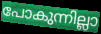
പോകുന്നില്ലാ